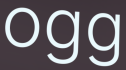
ogg